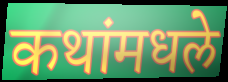
कथांमधले